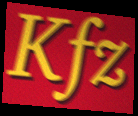
Kfz